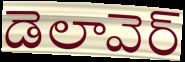
డెలావెర్